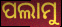
ପଲାମୁ